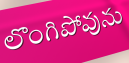
లొంగిపోవును